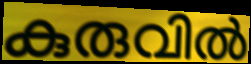
കുരുവിൽ